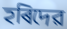
হৰিদেৱ